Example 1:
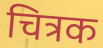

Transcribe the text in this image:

चित्रक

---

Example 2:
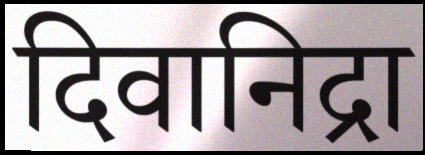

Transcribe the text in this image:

दिवानिद्रा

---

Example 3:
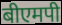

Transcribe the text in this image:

बीएमपी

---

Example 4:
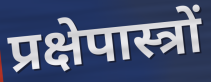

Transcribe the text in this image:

प्रक्षेपास्त्रों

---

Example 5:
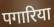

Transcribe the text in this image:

पगारिया